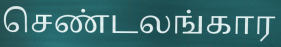
செண்டலங்கார